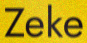
Zeke